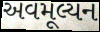
અવમૂલ્યન